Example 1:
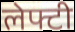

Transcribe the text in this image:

लेफ्टी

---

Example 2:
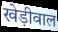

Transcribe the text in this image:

खेड़ीवाल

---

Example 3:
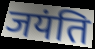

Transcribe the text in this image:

जयंति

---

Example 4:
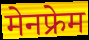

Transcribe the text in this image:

मेनफ्रेम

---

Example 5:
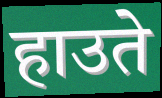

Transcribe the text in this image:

हाउते